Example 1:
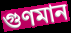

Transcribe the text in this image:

গুণমান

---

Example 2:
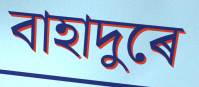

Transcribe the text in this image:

বাহাদুৰে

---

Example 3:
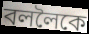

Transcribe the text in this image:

বললৈকে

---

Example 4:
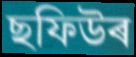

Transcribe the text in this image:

ছফিউৰ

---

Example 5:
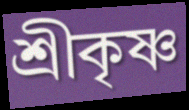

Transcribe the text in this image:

শ্ৰীকৃষ্ণ